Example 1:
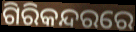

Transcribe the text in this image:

ଗିରିକନ୍ଦରରେ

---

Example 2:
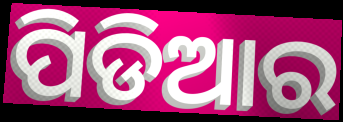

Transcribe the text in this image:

ପିଡିଆର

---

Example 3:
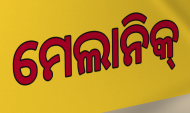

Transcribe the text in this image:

ମେଲାନିକ୍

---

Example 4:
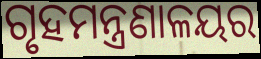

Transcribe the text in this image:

ଗୃହମନ୍ତ୍ରଣାଳୟର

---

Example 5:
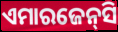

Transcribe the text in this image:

ଏମାରଜେନ୍‌ସି